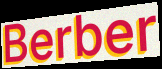
Berber